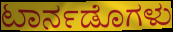
ಟಾರ್ನಡೊಗಳು